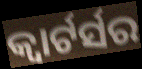
କ୍ବାର୍ଟର୍ସର